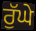
ਰੁੱਘੇ